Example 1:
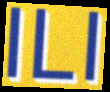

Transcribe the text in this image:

ILI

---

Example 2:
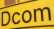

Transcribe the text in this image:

Dcom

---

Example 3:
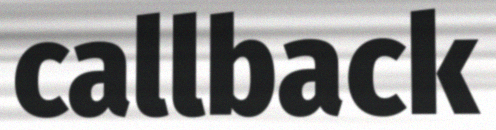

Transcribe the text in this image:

callback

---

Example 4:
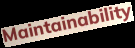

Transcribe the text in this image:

Maintainability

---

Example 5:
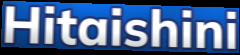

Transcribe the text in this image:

Hitaishini